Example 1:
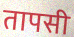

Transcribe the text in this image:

तापसी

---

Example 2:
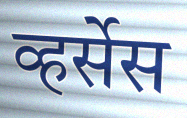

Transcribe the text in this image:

व्हर्सेस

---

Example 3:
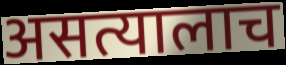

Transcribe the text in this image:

असत्यालाच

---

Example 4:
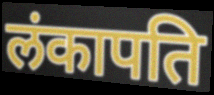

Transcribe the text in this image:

लंकापति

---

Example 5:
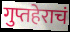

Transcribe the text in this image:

गुप्तहेराचं